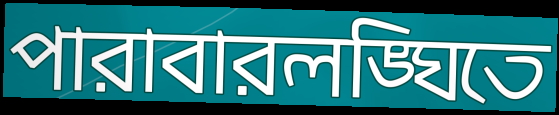
পারাবারলঙ্ঘিতে